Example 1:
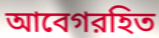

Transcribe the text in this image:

আবেগরহিত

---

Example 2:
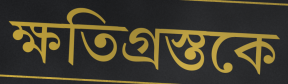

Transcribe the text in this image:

ক্ষতিগ্রস্তকে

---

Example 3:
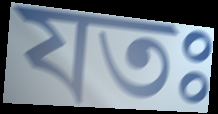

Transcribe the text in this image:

যতঃ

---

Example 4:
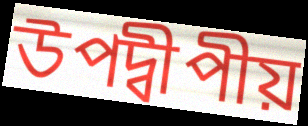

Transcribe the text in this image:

উপদ্বীপীয়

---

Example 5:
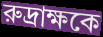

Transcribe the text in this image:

রুদ্রাক্ষকে